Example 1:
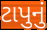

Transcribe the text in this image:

ટાપુનું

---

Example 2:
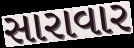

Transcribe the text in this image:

સારાવાર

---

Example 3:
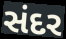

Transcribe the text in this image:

સંદર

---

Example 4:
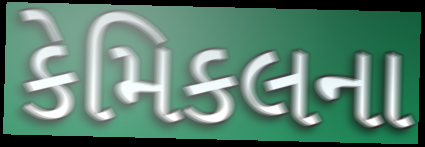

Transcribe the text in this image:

કેમિકલના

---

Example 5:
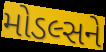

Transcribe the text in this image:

મોડલ્સને